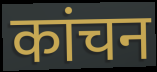
कांचन